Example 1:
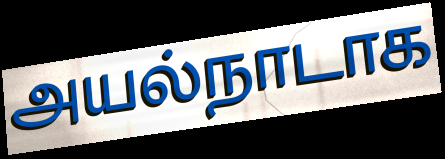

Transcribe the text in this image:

அயல்நாடாக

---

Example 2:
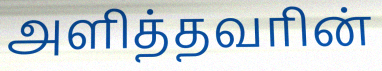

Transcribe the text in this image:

அளித்தவரின்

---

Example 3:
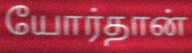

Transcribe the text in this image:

யோர்தான்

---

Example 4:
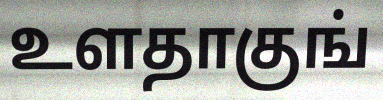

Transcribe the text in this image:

உளதாகுங்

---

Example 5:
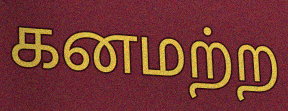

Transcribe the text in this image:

கனமற்ற